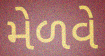
મેળવે